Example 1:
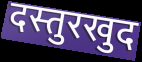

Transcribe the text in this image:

दस्तुरखुद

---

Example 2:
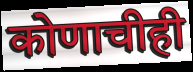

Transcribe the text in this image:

कोणाचीही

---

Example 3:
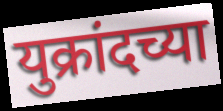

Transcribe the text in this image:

युक्रांदच्या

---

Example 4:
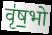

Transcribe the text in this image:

वृ॑ष॒भो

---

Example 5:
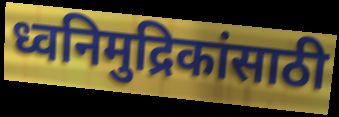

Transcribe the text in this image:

ध्वनिमुद्रिकांसाठी